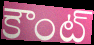
కౌంట్